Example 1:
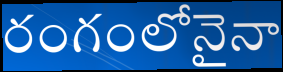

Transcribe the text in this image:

రంగంలోనైనా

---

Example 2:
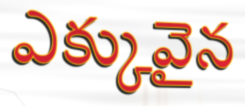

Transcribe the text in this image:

ఎక్కువైన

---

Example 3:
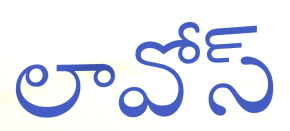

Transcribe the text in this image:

లావోస్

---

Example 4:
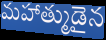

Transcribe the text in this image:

మహాత్ముడైన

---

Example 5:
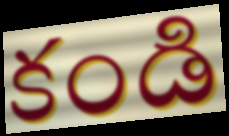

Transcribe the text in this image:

కండి